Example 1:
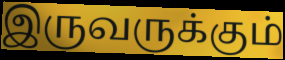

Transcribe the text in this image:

இருவருக்கும்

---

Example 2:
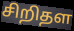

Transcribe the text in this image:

சிறிதள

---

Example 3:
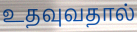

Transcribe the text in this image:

உதவுவதால்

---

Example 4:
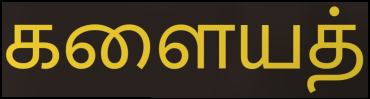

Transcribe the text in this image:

களையத்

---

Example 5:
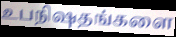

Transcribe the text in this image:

உபநிஷதங்களை